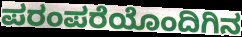
ಪರಂಪರೆಯೊಂದಿಗಿನ